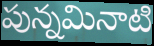
పున్నమినాటి